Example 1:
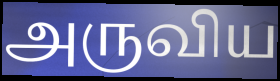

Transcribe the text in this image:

அருவிய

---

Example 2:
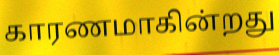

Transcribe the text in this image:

காரணமாகின்றது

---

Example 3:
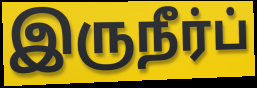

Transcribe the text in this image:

இருநீர்ப்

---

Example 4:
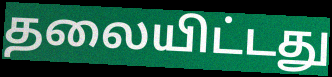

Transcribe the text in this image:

தலையிட்டது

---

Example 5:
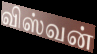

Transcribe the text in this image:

விஸ்வன்